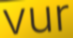
vur